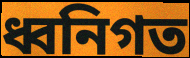
ধ্বনিগত